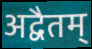
अद्वैतम्